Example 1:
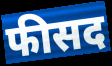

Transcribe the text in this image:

फीसद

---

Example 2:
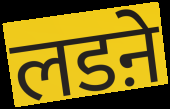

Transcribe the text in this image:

लडऩे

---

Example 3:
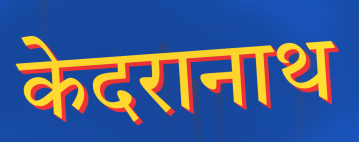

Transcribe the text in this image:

केदरानाथ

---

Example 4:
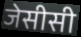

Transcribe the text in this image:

जेसीसी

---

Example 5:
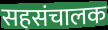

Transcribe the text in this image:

सहसंचालक